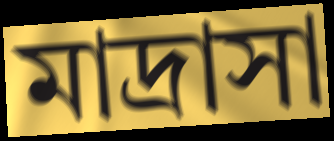
মাদ্রাসা